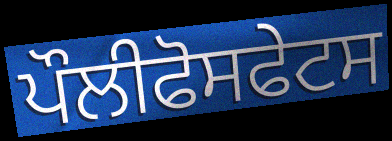
ਪੌਲੀਫੋਸਫੇਟਸ